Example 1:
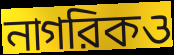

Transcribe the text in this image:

নাগরিকও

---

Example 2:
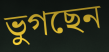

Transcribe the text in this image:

ভুগছেন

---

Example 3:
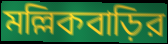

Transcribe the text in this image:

মল্লিকবাড়ির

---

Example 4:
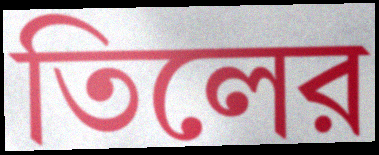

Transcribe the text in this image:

তিলের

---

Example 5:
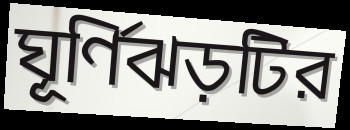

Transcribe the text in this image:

ঘূর্ণিঝড়টির